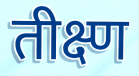
तीक्ष्ण